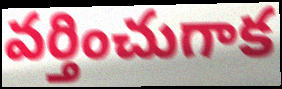
వర్తించుగాక